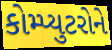
કોમ્પ્યુટરોને